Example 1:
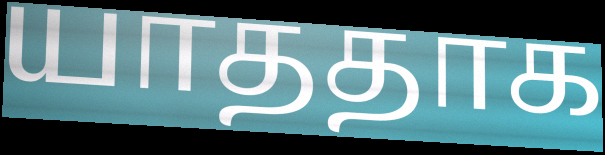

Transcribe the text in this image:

யாததாக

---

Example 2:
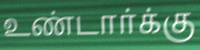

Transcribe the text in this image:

உண்டார்க்கு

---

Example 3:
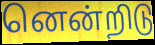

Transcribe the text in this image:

னென்றிடு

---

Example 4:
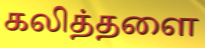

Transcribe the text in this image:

கலித்தளை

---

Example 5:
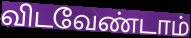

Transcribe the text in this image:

விடவேண்டாம்